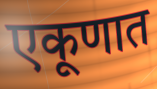
एकूणात